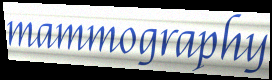
mammography